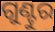
ଗୁଣ୍ଟୁର